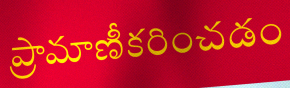
ప్రామాణీకరించడం